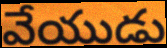
వేయుడు